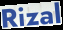
Rizal